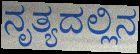
ನೃತ್ಯದಲ್ಲಿನ